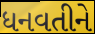
ધનવતીને